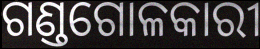
ଗଣ୍ଡଗୋଳକାରୀ